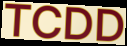
TCDD